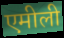
एमीली